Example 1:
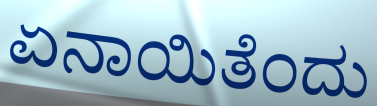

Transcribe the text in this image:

ಏನಾಯಿತೆಂದು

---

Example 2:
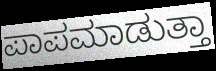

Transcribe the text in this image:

ಪಾಪಮಾಡುತ್ತಾ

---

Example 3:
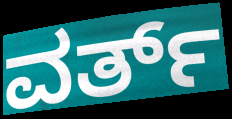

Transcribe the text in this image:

ವರ್ತ್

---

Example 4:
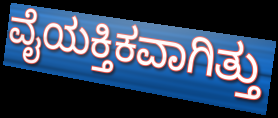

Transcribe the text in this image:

ವೈಯಕ್ತಿಕವಾಗಿತ್ತು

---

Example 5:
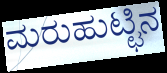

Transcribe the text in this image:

ಮರುಹುಟ್ಟಿನ